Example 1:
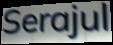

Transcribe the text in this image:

Serajul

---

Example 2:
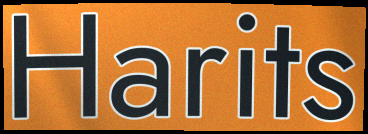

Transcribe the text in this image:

Harits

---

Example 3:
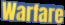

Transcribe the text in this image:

Warfare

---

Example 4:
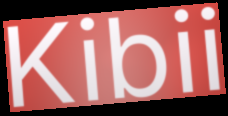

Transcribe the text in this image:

Kibii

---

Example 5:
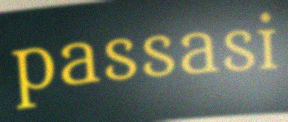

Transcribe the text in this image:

passasi